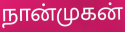
நான்முகன்